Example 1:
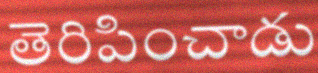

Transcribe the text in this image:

తెరిపించాడు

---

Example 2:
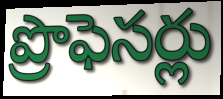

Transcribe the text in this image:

ప్రొఫెసర్లు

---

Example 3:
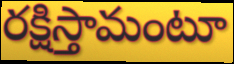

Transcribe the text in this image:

రక్షిస్తామంటూ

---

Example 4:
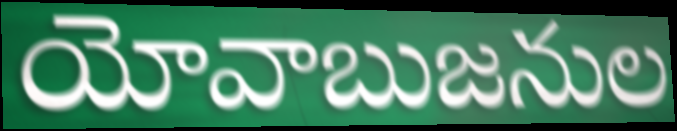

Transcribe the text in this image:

యోవాబుజనుల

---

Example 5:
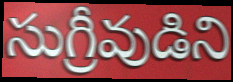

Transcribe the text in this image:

సుగ్రీవుడిని